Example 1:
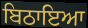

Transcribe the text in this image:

ਬਿਠਾਇਆ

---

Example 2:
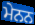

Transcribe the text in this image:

ਮੇਨਨ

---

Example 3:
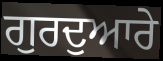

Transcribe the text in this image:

ਗੁਰਦੁਆਰੇ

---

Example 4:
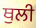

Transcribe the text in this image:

ਥੁਲੀ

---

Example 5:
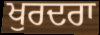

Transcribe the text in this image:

ਖੁਰਦਰਾ